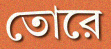
তোরে